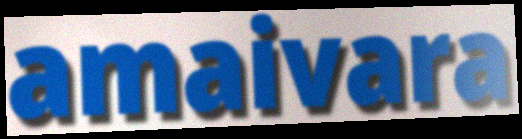
amaivara